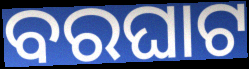
ବରଘାଟ